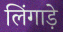
लिंगाड़े